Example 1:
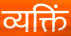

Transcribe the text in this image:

व्यक्तिं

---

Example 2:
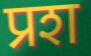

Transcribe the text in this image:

प्रश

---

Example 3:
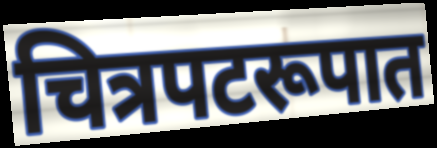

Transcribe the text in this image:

चित्रपटरूपात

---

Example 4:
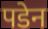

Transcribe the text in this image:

पडेन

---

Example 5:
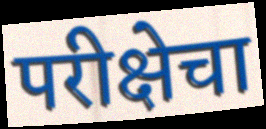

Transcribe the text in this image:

परीक्षेचा